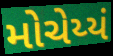
મોચેય્યં